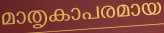
മാതൃകാപരമായ